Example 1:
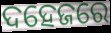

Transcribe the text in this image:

ଦହେଜରେ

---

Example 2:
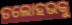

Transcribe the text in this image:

ଡଲୋହଭକୁ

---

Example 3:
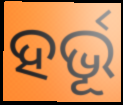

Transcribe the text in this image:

ହର୍ଭୂ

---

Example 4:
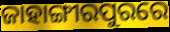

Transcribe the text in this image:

ଜାହାଙ୍ଗୀରପୁରରେ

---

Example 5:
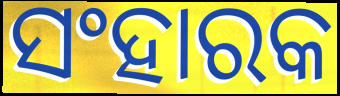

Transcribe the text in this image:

ସଂହାରକ